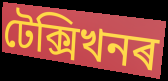
টেক্সিখনৰ